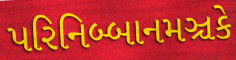
પરિનિબ્બાનમઞ્ચકે